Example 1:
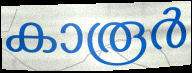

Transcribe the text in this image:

കാരൂർ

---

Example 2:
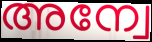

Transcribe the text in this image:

അന്വേ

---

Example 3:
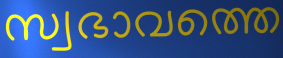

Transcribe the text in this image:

സ്വഭാവത്തെ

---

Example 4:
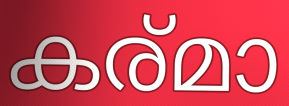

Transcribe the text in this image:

കര്മാ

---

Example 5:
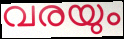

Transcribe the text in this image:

വരയും